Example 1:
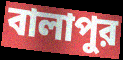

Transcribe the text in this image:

বালাপুর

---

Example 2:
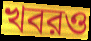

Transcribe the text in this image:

খবরও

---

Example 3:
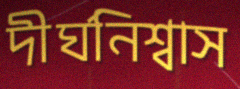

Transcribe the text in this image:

দীর্ঘনিশ্বাস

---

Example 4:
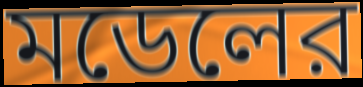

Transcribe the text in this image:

মডেলের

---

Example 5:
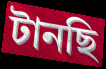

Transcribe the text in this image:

টানছি